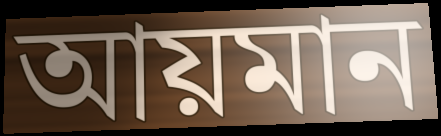
আয়মান